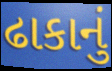
ઢાકાનું